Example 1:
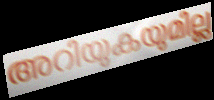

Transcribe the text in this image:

അറിയുകയുമില്ല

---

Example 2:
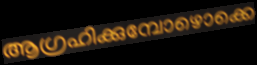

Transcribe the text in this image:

ആഗ്രഹിക്കുമ്പോഴൊക്കെ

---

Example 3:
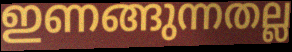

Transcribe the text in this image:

ഇണങ്ങുന്നതല്ല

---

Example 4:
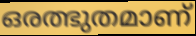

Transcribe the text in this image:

ഒരത്ഭുതമാണ്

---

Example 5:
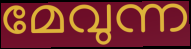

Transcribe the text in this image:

മേവുന്ന